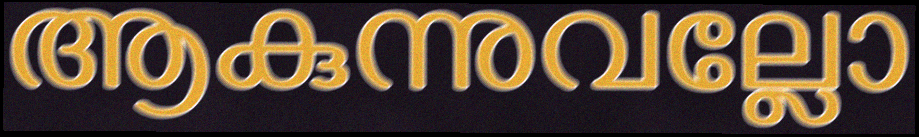
ആകുന്നുവല്ലോ